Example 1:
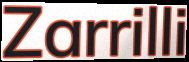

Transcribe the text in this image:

Zarrilli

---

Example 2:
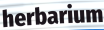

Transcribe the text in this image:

herbarium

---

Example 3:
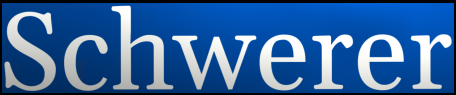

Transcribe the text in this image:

Schwerer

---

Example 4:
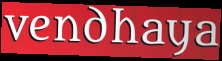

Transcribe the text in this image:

vendhaya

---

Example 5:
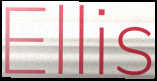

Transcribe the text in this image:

Ellis